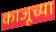
काजूच्या